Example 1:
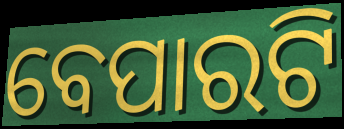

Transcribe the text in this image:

ବେପାରଟି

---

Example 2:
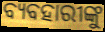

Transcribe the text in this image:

ବ୍ୟବହାରୀଙ୍କୁ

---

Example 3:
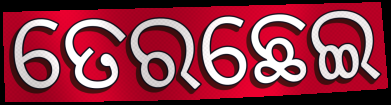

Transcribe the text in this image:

ତେରଛେଇ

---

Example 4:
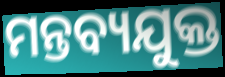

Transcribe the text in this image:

ମନ୍ତବ୍ୟଯୁକ୍ତ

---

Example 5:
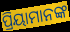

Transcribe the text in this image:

ପ୍ରିୟାମାନଙ୍କ